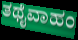
ತಥೈವಾಹಂ